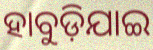
ହାବୁଡ଼ିଯାଇ